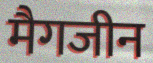
मैगजीन